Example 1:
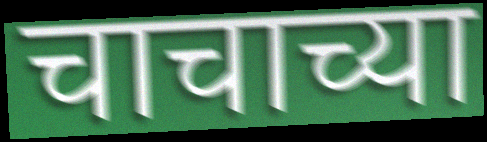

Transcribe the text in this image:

चाचाच्या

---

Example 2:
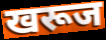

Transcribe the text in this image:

खरूज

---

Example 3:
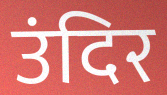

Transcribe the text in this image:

उंदिर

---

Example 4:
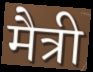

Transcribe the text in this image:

मैत्री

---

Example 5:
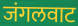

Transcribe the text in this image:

जंगलवाट